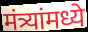
मंत्र्यांमध्ये